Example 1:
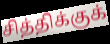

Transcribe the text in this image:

சித்திக்குக்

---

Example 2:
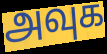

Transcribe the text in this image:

அவுக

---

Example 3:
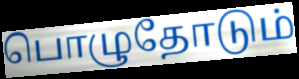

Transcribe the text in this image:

பொழுதோடும்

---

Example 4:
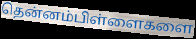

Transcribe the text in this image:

தென்னம்பிள்ளைகளை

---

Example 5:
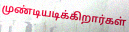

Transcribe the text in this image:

முண்டியடிக்கிறார்கள்